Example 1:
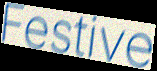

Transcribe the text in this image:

Festive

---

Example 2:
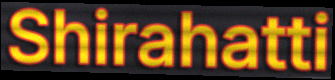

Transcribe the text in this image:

Shirahatti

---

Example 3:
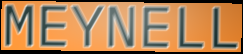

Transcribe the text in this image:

MEYNELL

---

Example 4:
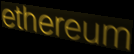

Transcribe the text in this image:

ethereum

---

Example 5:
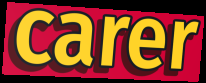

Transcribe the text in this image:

carer